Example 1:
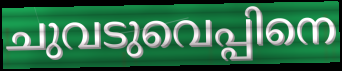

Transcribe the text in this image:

ചുവടുവെപ്പിനെ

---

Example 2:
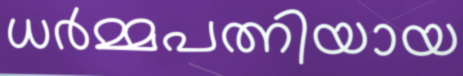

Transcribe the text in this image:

ധർമ്മപത്നിയായ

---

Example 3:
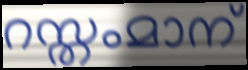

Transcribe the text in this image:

റസ്തംമാന്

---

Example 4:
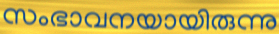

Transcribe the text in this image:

സംഭാവനയായിരുന്നു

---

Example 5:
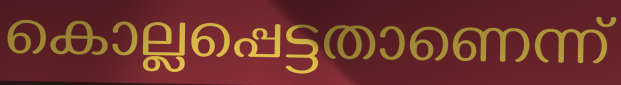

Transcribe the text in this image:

കൊല്ലപ്പെട്ടതാണെന്ന്